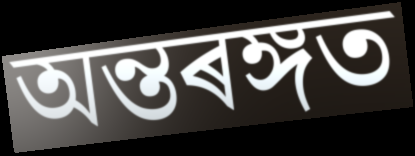
অন্তৰঙ্গত